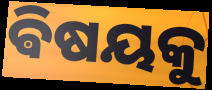
ଵିଷୟକୁ